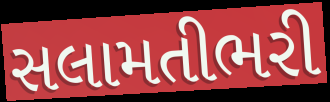
સલામતીભરી